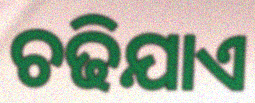
ଚଢିଯାଏ